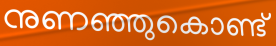
നുണഞ്ഞുകൊണ്ട്